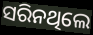
ସରିନଥିଲେ